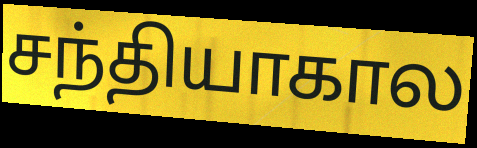
சந்தியாகால